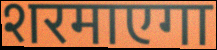
शरमाएगा